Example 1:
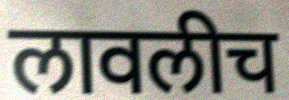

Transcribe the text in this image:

लावलीच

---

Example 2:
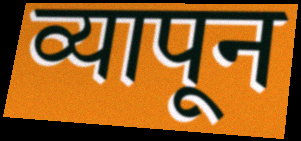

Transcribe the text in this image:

व्यापून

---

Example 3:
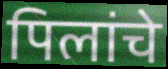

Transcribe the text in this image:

पिलांचे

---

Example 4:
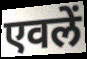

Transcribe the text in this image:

एवलें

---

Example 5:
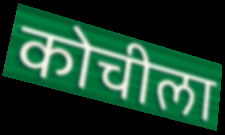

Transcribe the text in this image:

कोचीला